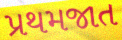
પ્રથમજાત